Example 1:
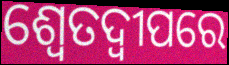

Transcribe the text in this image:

ଶ୍ୱେତଦ୍ୱୀପରେ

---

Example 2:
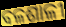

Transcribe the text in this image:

ବଳଶାଳୀ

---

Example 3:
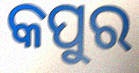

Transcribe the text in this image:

କପୁର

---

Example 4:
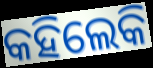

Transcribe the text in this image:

କହିଲେକି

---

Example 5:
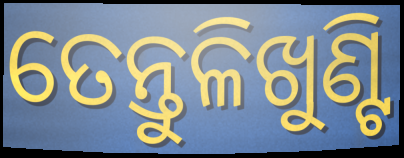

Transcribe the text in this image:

ତେନ୍ତୁଳିଖୁଣ୍ଟି